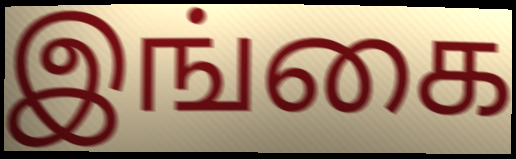
இங்கை